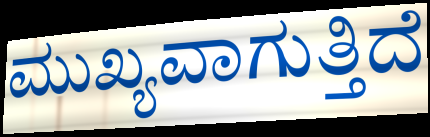
ಮುಖ್ಯವಾಗುತ್ತಿದೆ